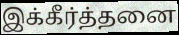
இக்கீர்த்தனை